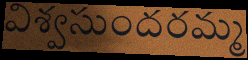
విశ్వసుందరమ్మ